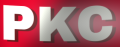
PKC